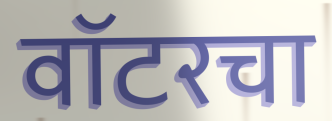
वॉटरचा